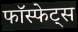
फॉस्फेट्स